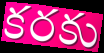
కరకు